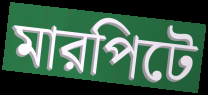
মারপিটে